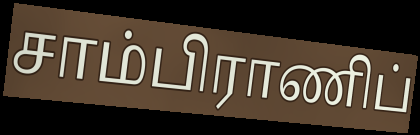
சாம்பிராணிப்